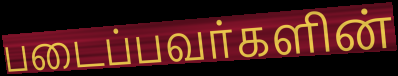
படைப்பவர்களின்